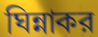
ঘিন্নাকর